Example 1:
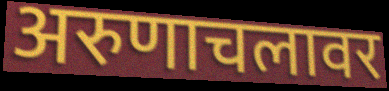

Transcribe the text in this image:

अरुणाचलावर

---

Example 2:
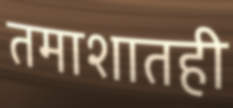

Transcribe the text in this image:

तमाशातही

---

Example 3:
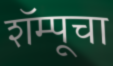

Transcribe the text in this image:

शॅम्पूचा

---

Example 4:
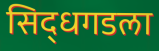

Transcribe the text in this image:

सिद्धगडला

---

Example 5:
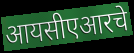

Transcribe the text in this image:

आयसीएआरचे